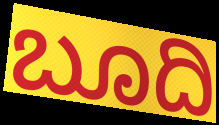
ಬೂದಿ